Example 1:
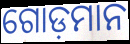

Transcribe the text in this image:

ଗୋଡ଼ମାନ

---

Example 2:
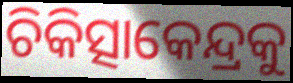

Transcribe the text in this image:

ଚିକିତ୍ସାକେନ୍ଦ୍ରକୁ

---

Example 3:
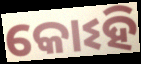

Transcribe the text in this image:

କୋଽହି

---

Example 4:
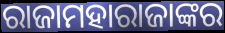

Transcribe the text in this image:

ରାଜାମହାରାଜାଙ୍କର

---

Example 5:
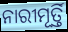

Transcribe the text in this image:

ନାରୀମୂର୍ତ୍ତି